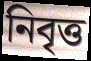
নিবৃত্ত